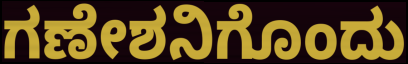
ಗಣೇಶನಿಗೊಂದು